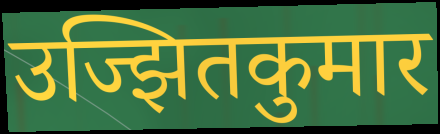
उज्झितकुमार